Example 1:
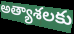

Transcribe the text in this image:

అత్యాశలకు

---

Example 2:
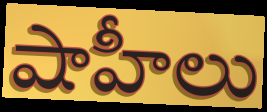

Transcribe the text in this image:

షాహీలు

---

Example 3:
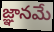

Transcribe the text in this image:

జ్ఞానమే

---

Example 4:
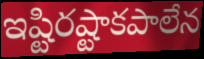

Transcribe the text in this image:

ఇష్టిరష్టాకపాలేన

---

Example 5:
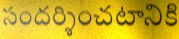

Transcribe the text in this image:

సందర్శించటానికి